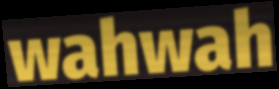
wahwah